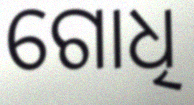
ଗୋଧି